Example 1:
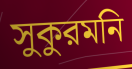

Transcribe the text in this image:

সুকুরমনি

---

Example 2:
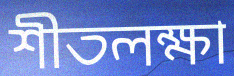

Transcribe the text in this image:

শীতলক্ষা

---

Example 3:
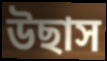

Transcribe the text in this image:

উছাস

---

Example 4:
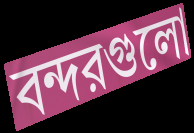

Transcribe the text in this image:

বন্দরগুলো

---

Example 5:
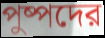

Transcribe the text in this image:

পুষ্পদের